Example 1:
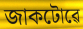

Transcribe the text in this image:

জাকটোৱে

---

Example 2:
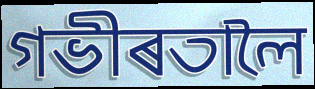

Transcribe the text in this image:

গভীৰতালৈ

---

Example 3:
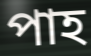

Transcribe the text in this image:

পাহ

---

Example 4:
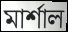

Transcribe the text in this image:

মাৰ্শাল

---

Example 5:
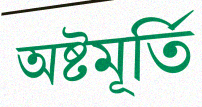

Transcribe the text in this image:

অষ্টমূৰ্তি